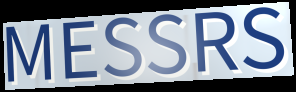
MESSRS